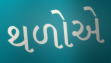
થળોએ